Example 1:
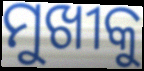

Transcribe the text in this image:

ମୁଖୀକୁ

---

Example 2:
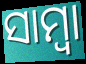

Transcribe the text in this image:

ସାମ୍ବା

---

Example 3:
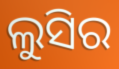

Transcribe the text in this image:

ଲୁସିର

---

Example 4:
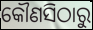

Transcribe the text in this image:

କୌଣସିଠାରୁ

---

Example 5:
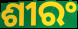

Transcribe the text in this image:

ଶୀରଂ